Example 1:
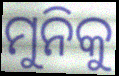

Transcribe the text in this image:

ମୁନିକୁ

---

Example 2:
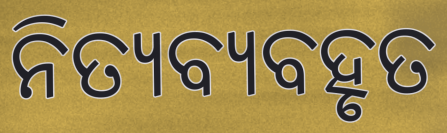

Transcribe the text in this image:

ନିତ୍ୟବ୍ୟବହୃତ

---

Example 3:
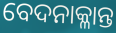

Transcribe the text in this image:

ବେଦନାକ୍ଳାନ୍ତ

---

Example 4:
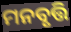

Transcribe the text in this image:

ମନବୃତ୍ତି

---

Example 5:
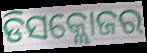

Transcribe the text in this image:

ଡିସକ୍ଲୋଜର